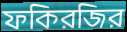
ফকিরজির